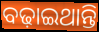
ବଢ଼ାଇଥାନ୍ତି